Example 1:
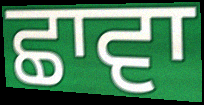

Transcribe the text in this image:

ਛਾਵਾ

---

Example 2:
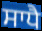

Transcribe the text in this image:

ਸਾਧੈ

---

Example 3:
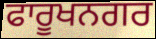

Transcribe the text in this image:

ਫਾਰੂਖਨਗਰ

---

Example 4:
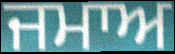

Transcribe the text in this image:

ਜਮਾਅ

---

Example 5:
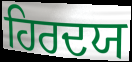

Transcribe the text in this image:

ਹਿਰਦਯ